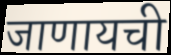
जाणायची